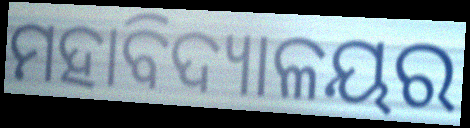
ମହାବିଦ୍ୟାଳୟର